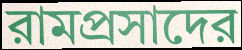
রামপ্রসাদের